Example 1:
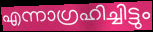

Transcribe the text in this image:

എന്നാഗ്രഹിച്ചിട്ടും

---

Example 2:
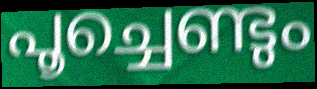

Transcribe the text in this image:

പൂച്ചെണ്ടും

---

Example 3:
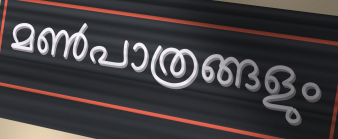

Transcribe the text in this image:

മൺപാത്രങ്ങളും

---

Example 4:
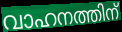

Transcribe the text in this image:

വാഹനത്തിന്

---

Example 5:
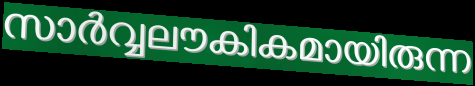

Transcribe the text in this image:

സാർവ്വലൗകികമായിരുന്ന